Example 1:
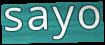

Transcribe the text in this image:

sayo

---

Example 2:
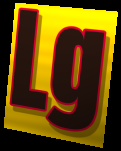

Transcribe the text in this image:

Lg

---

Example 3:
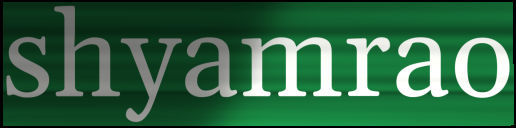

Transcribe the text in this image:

shyamrao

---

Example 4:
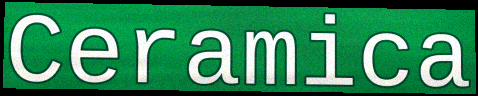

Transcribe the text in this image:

Ceramica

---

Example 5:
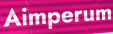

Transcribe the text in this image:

Aimperum